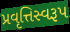
પ્રવૃત્તિસ્વરૂપ